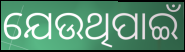
ଯେଉଥିପାଇଁ